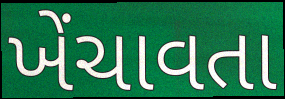
ખેંચાવતા